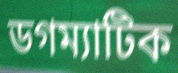
ডগম্যাটিক